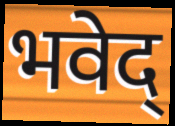
भवेद्